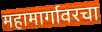
महामार्गावरचा